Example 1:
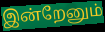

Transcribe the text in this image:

இன்றேனும்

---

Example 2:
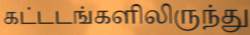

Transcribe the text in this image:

கட்டடங்களிலிருந்து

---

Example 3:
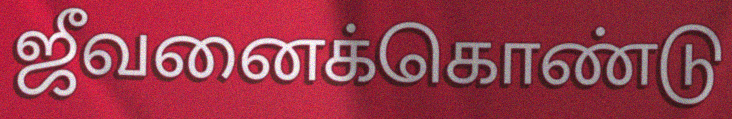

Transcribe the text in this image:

ஜீவனைக்கொண்டு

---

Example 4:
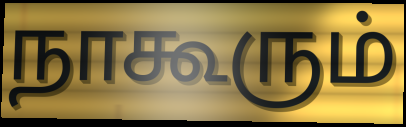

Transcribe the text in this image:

நாகூரும்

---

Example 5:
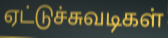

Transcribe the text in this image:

ஏட்டுச்சுவடிகள்